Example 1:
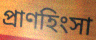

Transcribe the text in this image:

প্রাণহিংসা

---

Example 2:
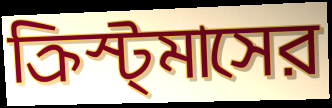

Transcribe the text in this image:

ক্রিস্ট্‌মাসের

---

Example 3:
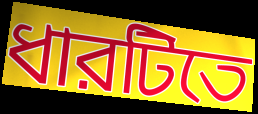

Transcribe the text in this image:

ধারটিতে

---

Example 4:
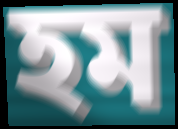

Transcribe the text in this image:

হম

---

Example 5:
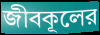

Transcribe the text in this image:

জীবকূলের